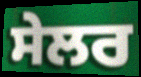
ਸੇਲਰ